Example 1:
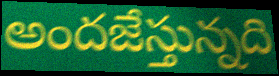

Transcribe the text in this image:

అందజేస్తున్నది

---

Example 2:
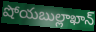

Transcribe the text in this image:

షోయబుల్లాఖాన్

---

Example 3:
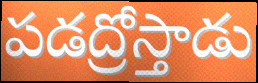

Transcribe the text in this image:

పడద్రోస్తాడు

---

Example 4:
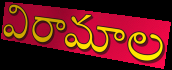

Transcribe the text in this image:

విరామాల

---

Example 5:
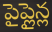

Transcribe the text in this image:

పైప్లైన్ల